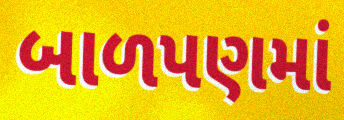
બાળપણમાં